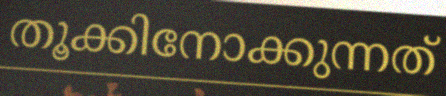
തൂക്കിനോക്കുന്നത്